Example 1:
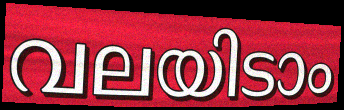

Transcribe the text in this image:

വലയിടാം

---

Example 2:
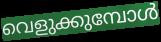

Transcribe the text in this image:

വെളുക്കുമ്പോൾ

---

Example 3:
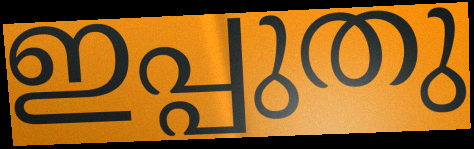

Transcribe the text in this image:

ഇപ്പുതു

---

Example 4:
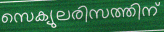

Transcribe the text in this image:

സെക്യുലരിസത്തിന്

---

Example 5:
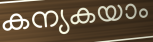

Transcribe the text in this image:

കന്യകയാം